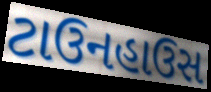
ટાઉનહાઉસ